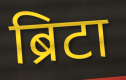
ब्रिटा